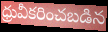
ధ్రువీకరించబడిన